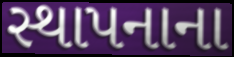
સ્થાપનાના